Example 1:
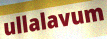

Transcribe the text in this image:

ullalavum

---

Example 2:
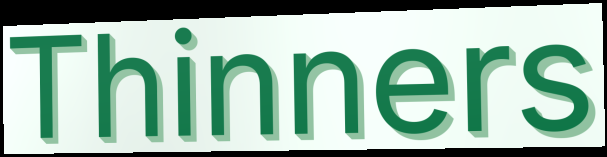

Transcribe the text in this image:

Thinners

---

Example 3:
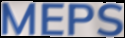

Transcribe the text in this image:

MEPS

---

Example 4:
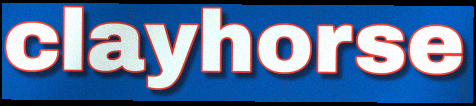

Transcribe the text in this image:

clayhorse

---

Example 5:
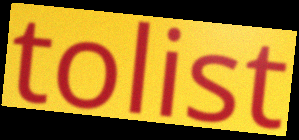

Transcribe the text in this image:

tolist